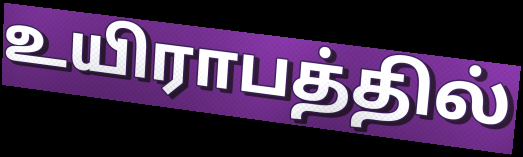
உயிராபத்தில்